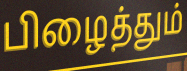
பிழைத்தும்